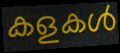
കളകൾ